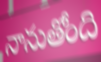
నానుతోంది